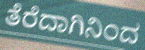
ತೆರೆದಾಗಿನಿಂದ